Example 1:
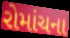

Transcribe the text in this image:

રોમાંચના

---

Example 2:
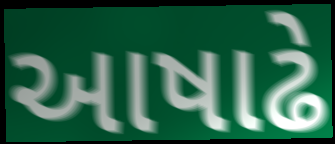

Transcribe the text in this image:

આષાઢે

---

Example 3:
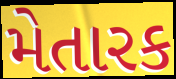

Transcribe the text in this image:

મેતારક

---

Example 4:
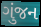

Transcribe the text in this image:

ગુંજન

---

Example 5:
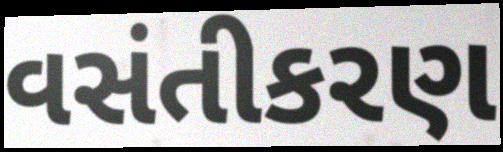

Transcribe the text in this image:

વસંતીકરણ